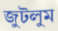
জুটলুম